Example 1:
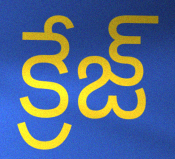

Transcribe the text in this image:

క్రేజ్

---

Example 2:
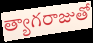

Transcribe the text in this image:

త్యాగరాజుతో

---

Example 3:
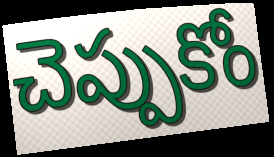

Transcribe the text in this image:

చెప్పుకోం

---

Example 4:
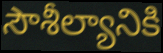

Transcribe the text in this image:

సౌశీల్యానికి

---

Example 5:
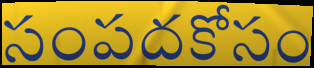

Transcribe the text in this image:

సంపదకోసం